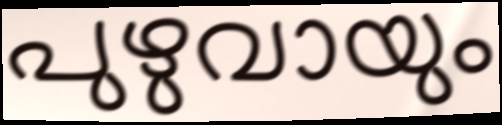
പുഴുവായും